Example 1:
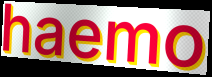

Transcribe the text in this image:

haemo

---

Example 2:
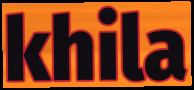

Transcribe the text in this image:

khila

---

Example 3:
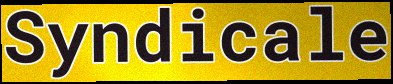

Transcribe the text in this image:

Syndicale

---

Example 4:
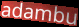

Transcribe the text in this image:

adambu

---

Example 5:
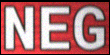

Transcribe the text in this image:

NEG